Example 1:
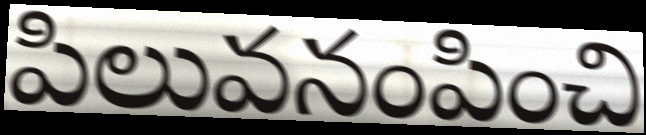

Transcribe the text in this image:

పిలువనంపించి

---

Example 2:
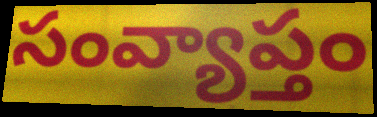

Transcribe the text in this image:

సంవ్యాప్తం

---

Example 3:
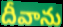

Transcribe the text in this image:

దీవాను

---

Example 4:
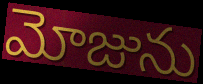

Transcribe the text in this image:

మోజును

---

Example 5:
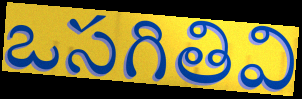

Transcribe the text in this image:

ఒసగితివి